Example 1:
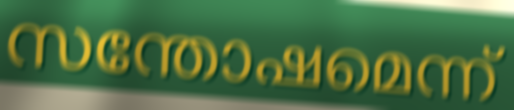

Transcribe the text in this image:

സന്തോഷമെന്ന്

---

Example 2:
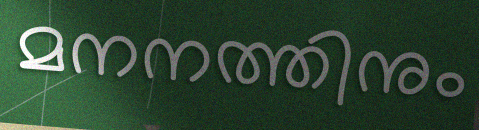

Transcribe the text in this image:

മനനത്തിനും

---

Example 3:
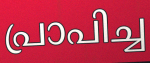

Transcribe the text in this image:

പ്രാപിച്ച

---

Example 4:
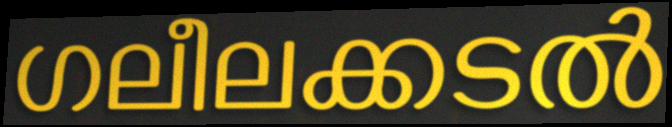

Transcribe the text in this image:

ഗലീലക്കടൽ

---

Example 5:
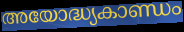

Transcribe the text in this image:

അയോദ്ധ്യകാണ്ഡം